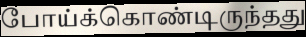
போய்க்கொண்டிருந்தது